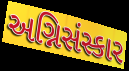
અગ્નિસંસ્કાર